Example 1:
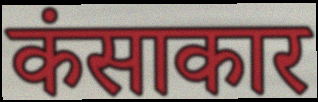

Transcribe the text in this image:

कंसाकार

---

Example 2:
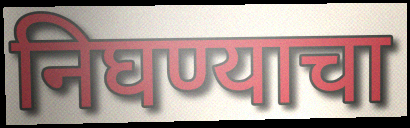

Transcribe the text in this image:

निघण्याचा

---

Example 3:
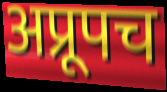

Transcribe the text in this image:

अप्रूपच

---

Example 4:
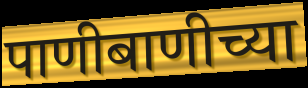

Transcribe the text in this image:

पाणीबाणीच्या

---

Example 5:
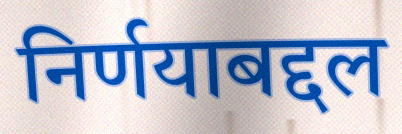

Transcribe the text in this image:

निर्णयाबद्दल